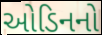
ઓડિનનો